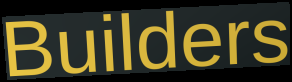
Builders